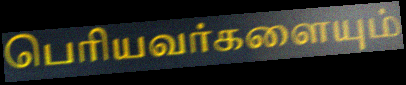
பெரியவர்களையும்